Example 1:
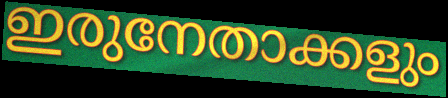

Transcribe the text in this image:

ഇരുനേതാക്കളും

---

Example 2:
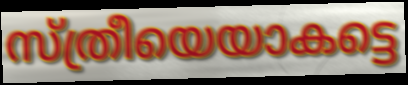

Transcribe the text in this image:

സ്ത്രീയെയാകട്ടെ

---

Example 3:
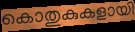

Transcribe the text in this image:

കൊതുകുകളായി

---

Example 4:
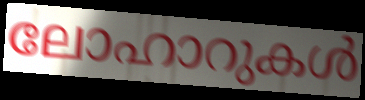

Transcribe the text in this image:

ലോഹാറുകൾ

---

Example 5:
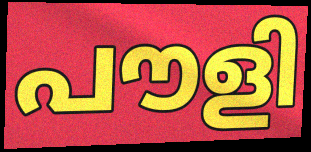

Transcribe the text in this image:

പൗളി